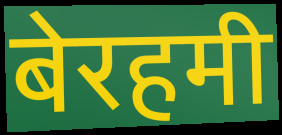
बेरहमी